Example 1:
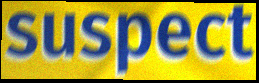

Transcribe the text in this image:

suspect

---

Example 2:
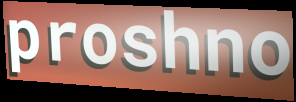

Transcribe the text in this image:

proshno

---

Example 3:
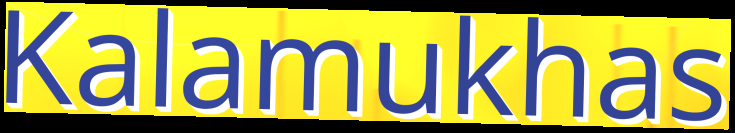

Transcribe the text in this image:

Kalamukhas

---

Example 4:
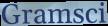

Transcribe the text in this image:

Gramsci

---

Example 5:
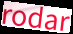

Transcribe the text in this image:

rodar